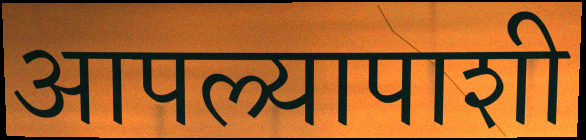
आपल्यापाशी